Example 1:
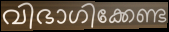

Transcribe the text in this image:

വിഭാഗിക്കേണ്ട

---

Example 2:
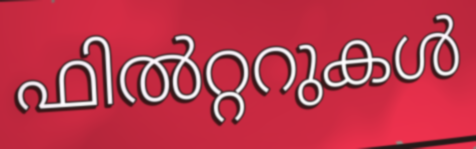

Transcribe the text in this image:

ഫിൽറ്ററുകൾ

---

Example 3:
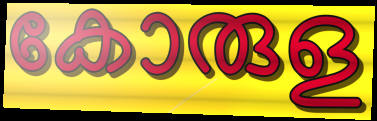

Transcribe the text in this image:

കോരുള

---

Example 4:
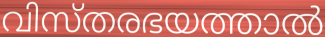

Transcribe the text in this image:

വിസ്തരഭയത്താൽ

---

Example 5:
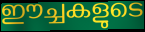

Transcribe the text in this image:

ഈച്ചകളുടെ